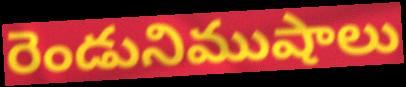
రెండునిముషాలు